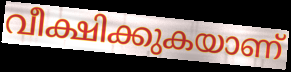
വീക്ഷിക്കുകയാണ്